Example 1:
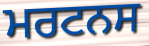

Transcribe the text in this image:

ਮਰਟਨਸ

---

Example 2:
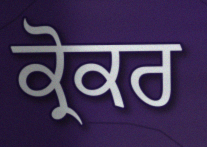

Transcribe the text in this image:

ਕ੍ਰੋਕਰ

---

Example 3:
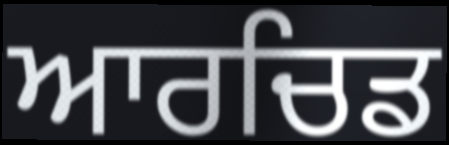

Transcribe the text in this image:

ਆਰਚਿਡ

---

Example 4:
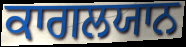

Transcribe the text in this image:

ਕਾਗਲਯਾਨ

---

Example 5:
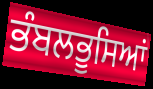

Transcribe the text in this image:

ਭੰਬਲਭੂਸਿਆਂ